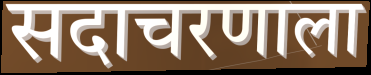
सदाचरणाला